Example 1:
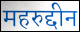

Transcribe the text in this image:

महरुद्दीन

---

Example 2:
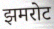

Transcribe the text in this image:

झमरोट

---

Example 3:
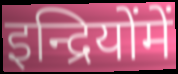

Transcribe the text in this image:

इन्द्रियोंमें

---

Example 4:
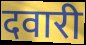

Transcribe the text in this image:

दवारी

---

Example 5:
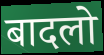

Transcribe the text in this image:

बादलो